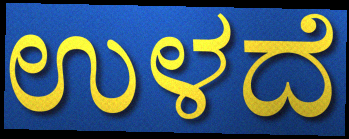
ಉಳದೆ